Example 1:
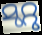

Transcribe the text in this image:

മുറ്റു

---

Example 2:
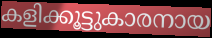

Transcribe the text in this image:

കളിക്കൂട്ടുകാരനായ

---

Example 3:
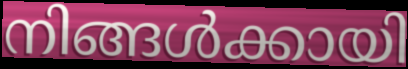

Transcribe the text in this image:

നിങ്ങൾക്കായി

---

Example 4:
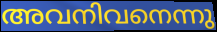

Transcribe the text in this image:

അവനിവനെന്നു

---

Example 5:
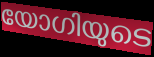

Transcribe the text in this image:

യോഗിയുടെ